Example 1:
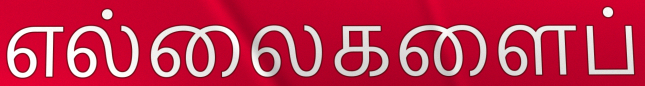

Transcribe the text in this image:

எல்லைகளைப்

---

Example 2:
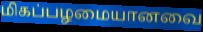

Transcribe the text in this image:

மிகப்பழமையானவை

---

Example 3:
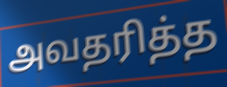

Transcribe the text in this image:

அவதரித்த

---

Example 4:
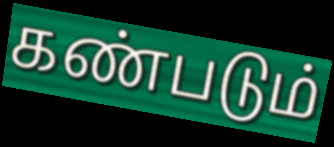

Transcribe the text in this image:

கண்படும்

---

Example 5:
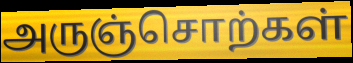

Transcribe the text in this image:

அருஞ்சொற்கள்